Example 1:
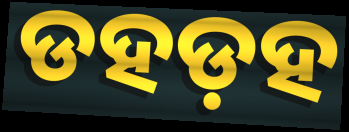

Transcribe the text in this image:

ଡହଡ଼ହ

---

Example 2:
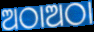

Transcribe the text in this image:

ଅଠାଅଠା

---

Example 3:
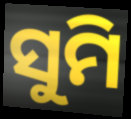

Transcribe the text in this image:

ସୁମି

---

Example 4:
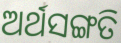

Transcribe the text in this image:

ଅର୍ଥସଙ୍ଗତି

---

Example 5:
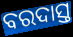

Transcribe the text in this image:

ବରଦାସ୍ତ